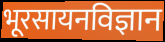
भूरसायनविज्ञान